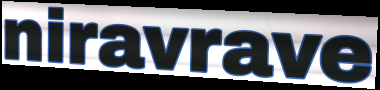
niravrave